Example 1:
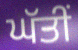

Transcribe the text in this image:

ਘੱਤੀਂ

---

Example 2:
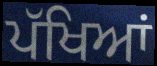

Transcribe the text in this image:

ਪੱਖਿਆਂ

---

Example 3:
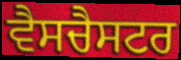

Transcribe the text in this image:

ਵੈਸਚੈਸਟਰ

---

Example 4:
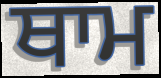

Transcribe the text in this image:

ਥਾਮ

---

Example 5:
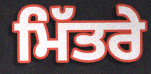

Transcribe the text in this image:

ਮਿੱਤਰੇ